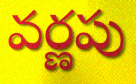
వర్ణపు